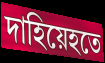
দাহিয়েহতে